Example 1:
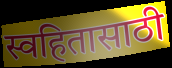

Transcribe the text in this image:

स्वहितासाठी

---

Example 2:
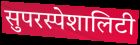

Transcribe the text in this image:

सुपरस्पेशालिटी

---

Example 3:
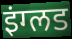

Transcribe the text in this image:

इंग्लड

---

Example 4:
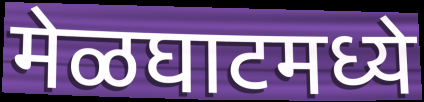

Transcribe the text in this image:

मेळघाटमध्ये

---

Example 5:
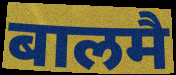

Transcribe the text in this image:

बालमै